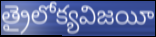
త్రైలోక్యవిజయీ